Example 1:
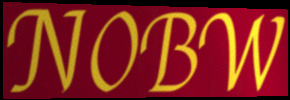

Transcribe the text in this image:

NOBW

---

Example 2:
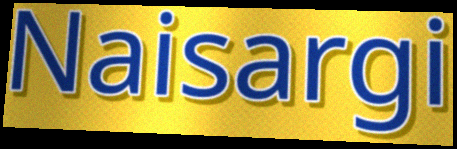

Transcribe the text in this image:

Naisargi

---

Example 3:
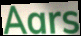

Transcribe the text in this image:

Aars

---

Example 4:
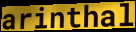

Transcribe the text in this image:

arinthal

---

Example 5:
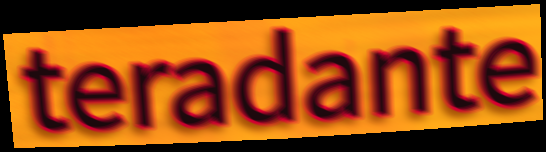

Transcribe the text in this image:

teradante